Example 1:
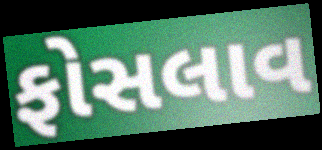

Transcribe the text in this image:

ફોસલાવ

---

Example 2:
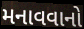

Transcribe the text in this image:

મનાવવાનો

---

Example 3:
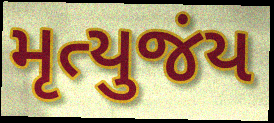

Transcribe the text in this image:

મૃત્યુજંય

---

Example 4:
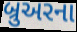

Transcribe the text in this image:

બ્રુઅરના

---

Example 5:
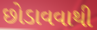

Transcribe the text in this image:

છોડાવવાથી